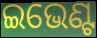
ଇଭେଣ୍ଟ